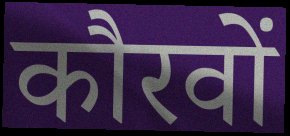
कौरवों